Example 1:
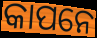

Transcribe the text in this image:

କାପନେ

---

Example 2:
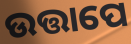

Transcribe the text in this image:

ଉତ୍ତାପେ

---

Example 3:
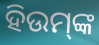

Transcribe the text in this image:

ହିଉମ୍‌ଙ୍କ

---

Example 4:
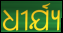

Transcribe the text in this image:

ଧୀର୍ଯ୍ୟ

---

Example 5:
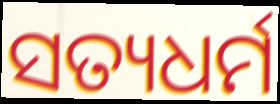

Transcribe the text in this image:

ସତ୍ୟଧର୍ମ